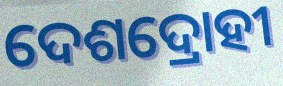
ଦେଶଦ୍ରୋହୀ